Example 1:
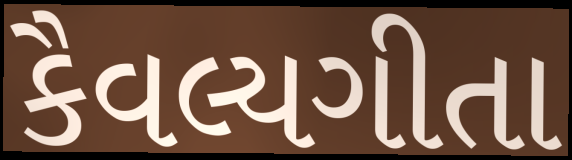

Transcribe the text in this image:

કૈવલ્યગીતા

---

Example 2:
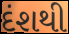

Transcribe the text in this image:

દંશથી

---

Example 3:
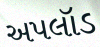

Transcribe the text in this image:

અપલૉડ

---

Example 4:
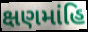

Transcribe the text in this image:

ક્ષણમાંહિ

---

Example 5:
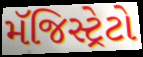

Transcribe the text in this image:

મૅજિસ્ટ્રેટો